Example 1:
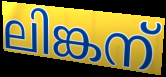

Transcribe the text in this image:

ലിങ്കന്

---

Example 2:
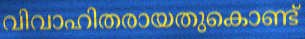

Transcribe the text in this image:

വിവാഹിതരായതുകൊണ്ട്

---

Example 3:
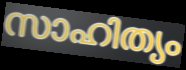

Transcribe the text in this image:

സാഹിത്യം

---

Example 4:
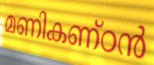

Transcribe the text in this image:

മണികണ്ഠൻ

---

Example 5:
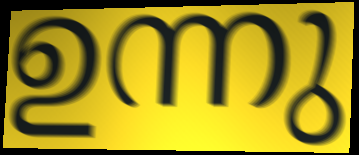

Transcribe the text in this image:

ഉന്നു